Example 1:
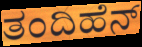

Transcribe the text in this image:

ತಂದಿಹೆನ್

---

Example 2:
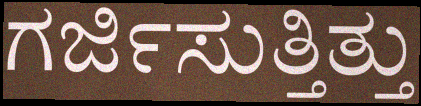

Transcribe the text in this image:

ಗರ್ಜಿಸುತ್ತಿತ್ತು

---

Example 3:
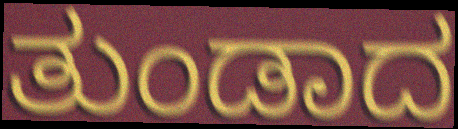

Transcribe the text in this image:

ತುಂಡಾದ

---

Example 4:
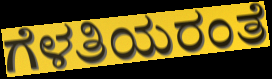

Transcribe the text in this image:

ಗೆಳತಿಯರಂತೆ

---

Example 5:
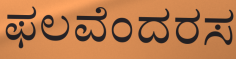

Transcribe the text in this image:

ಫಲವೆಂದರಸ